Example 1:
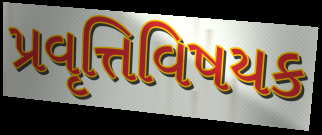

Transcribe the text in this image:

પ્રવૃત્તિવિષયક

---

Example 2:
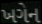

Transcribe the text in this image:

ખગેન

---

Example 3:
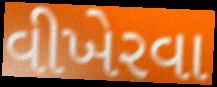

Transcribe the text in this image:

વીખેરવા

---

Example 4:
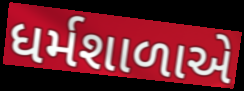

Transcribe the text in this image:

ધર્મશાળાએ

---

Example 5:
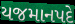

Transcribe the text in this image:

યજમાનપદે